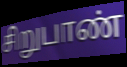
சிறுபாண்